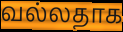
வல்லதாக